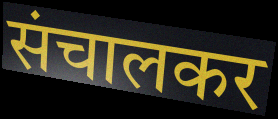
संचालकर